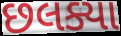
છલક્યા